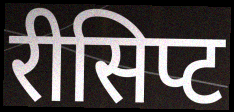
रीसिप्ट